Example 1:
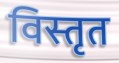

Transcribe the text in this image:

विस्तृत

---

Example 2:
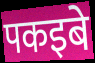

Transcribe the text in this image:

पकइबे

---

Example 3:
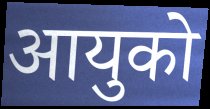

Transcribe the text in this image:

आयुको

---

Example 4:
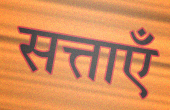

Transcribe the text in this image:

सत्ताएँ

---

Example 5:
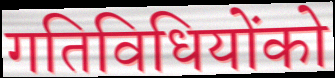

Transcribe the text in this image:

गतिविधियोंको